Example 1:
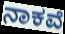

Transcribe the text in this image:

ನಾಕವೆ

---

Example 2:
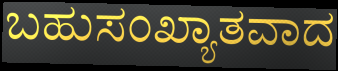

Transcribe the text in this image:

ಬಹುಸಂಖ್ಯಾತವಾದ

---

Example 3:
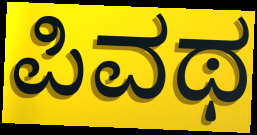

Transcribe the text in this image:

ಪಿವಥ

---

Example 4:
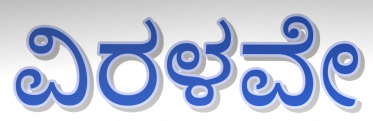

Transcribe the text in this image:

ವಿರಳವೇ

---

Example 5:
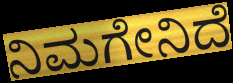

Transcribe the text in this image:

ನಿಮಗೇನಿದೆ